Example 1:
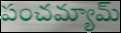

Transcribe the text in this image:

పంచమ్యామ్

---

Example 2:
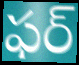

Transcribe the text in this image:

ఫర్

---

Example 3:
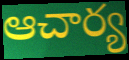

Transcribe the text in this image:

ఆచార్య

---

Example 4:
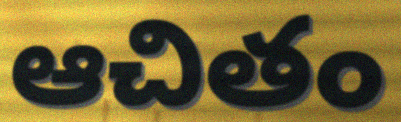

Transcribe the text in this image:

ఆచితం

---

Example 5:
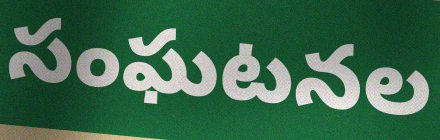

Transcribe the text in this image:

సంఘటనల